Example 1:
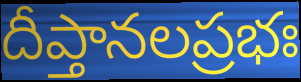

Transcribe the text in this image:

దీప్తానలప్రభః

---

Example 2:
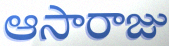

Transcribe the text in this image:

ఆసారాజు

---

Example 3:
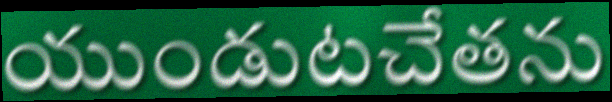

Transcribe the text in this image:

యుండుటచేతను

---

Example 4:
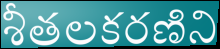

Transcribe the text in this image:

శీతలకరణిని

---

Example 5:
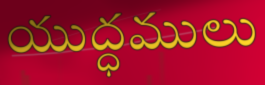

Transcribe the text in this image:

యుద్ధములు